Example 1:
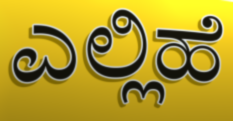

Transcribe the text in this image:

ಎಲ್ಲಿಹೆ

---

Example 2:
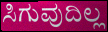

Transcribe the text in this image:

ಸಿಗುವುದಿಲ್ಲ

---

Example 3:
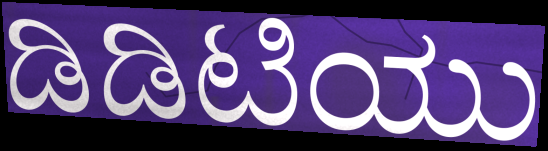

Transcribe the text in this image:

ಡಿಡಿಟಿಯು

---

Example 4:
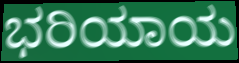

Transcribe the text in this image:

ಭರಿಯಾಯ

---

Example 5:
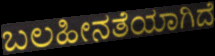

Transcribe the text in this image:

ಬಲಹೀನತೆಯಾಗಿದೆ